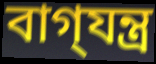
বাগ্‌যন্ত্র